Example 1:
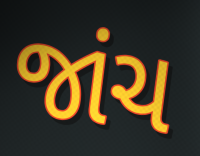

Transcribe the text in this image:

જાંચ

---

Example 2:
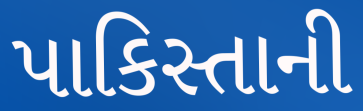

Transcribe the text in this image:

પાકિસ્તાની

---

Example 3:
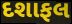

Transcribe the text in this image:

દશાફલ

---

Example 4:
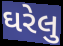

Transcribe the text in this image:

ઘરેલુ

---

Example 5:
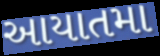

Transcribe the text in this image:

આયાતમા